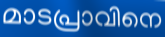
മാടപ്രാവിനെ